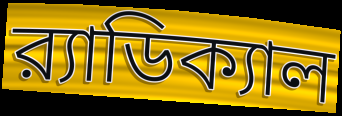
র‍্যাডিক্যাল